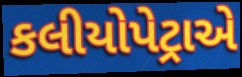
કલીયોપેટ્રાએ